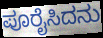
ಪೂರೈಸಿದನು